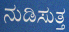
ನುಡಿಸುತ್ತ